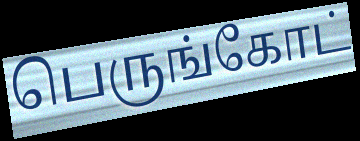
பெருங்கோட்